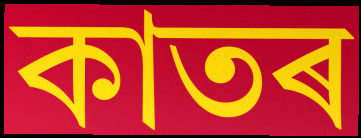
কাতৰ